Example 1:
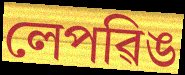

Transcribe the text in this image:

লেপৱিঙ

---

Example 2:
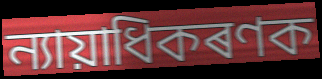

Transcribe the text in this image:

ন্যায়াধিকৰণক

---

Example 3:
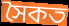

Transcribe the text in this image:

সৈকত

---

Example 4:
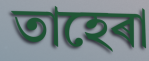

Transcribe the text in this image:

তাহেৰা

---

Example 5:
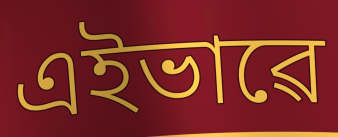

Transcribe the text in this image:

এইভাৱে